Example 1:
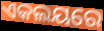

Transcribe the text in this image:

ଏକଲୟରେ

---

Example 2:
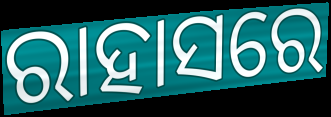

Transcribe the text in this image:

ରାହାସରେ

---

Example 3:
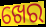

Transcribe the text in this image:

ଖେର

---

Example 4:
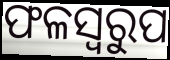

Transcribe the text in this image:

ଫଳସ୍ୱରୁପ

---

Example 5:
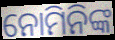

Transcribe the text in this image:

ନୋମିନିଙ୍କ